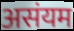
असंयम